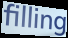
filling